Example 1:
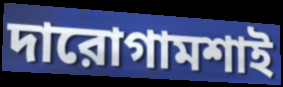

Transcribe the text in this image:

দারোগামশাই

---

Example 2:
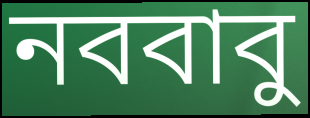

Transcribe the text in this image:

নববাবু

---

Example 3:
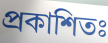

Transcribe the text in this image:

প্রকাশিতঃ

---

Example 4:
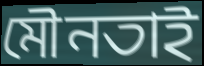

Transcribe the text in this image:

মৌনতাই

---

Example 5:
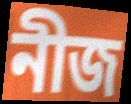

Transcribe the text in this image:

নীজ